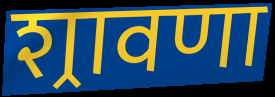
श्रावणा